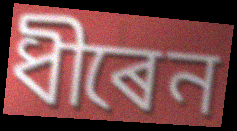
ধীৰেন